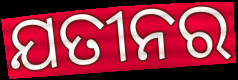
ଯତୀନର